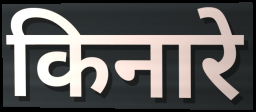
किनारे